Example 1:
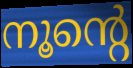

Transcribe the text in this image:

നൂന്റെ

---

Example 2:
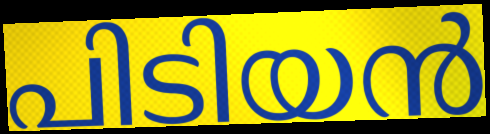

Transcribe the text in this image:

പിടിയൻ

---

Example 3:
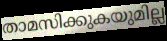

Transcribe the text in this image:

താമസിക്കുകയുമില്ല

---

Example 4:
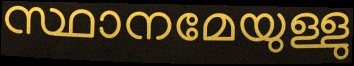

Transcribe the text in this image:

സ്ഥാനമേയുള്ളു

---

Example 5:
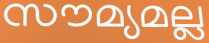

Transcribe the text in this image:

സൗമ്യമല്ല